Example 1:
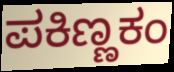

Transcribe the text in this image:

ಪಕಿಣ್ಣಕಂ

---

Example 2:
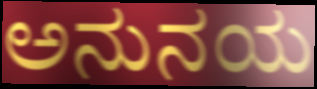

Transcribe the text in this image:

ಅನುನಯ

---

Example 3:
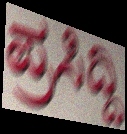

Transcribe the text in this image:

ಪ್ರಸಿದ್ದಿ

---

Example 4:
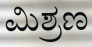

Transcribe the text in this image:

ಮಿಶ್ರಣ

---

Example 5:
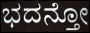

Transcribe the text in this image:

ಭದನ್ತೋ